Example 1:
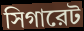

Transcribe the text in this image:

সিগারেট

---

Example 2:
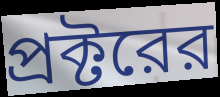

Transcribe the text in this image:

প্রক্টরের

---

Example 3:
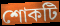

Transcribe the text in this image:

শোকটি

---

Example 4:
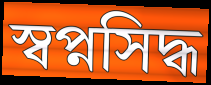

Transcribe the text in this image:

স্বপ্নসিদ্ধ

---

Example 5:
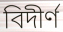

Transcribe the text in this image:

বিদীর্ণ